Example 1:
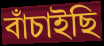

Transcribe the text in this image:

বাঁচাইছি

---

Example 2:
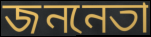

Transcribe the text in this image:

জননেতা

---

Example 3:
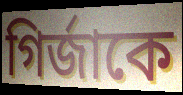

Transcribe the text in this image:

গির্জাকে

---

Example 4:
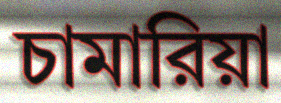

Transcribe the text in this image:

চামারিয়া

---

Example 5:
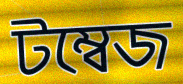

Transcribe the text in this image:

টম্বেজ